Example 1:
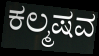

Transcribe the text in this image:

ಕಲ್ಮಷವ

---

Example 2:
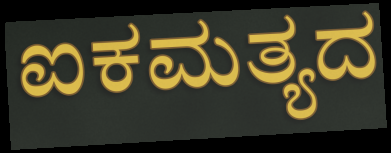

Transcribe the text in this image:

ಐಕಮತ್ಯದ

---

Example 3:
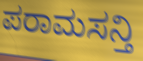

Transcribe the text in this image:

ಪರಾಮಸನ್ತಿ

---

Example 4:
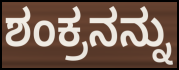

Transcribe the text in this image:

ಶಂಕ್ರನನ್ನು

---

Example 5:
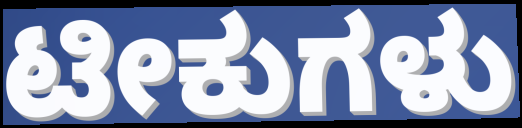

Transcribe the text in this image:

ಟೀಕುಗಳು